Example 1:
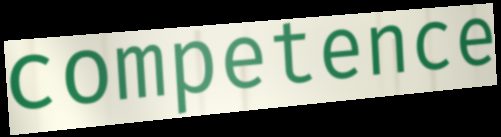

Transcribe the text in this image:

competence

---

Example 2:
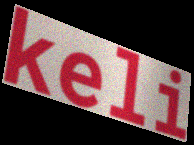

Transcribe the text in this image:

keli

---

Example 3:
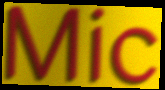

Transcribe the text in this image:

Mic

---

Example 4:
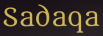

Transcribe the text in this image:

Sadaqa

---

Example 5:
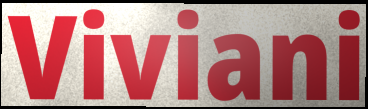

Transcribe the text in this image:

Viviani